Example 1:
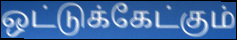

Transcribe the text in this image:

ஒட்டுக்கேட்கும்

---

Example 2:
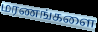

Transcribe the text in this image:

மரணங்களை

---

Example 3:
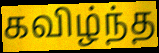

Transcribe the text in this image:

கவிழ்ந்த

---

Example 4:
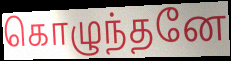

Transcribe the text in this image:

கொழுந்தனே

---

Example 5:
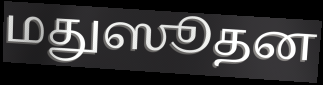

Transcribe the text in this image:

மதுஸூதன